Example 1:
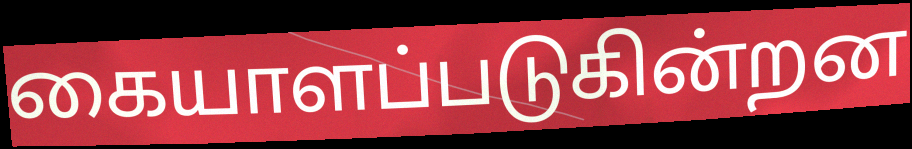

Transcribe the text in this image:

கையாளப்படுகின்றன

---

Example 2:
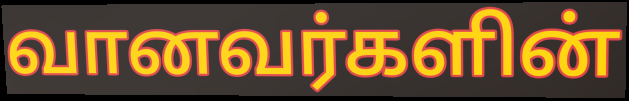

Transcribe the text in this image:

வானவர்களின்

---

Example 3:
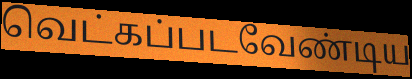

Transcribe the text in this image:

வெட்கப்படவேண்டிய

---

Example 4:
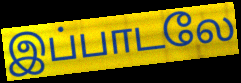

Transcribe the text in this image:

இப்பாடலே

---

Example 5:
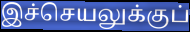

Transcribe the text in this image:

இச்செயலுக்குப்